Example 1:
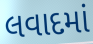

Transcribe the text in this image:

લવાદમાં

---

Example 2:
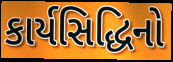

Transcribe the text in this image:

કાર્યસિદ્ધિનો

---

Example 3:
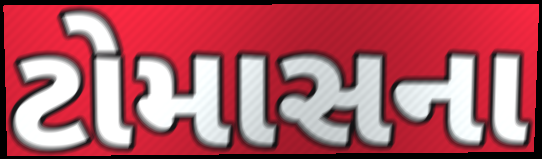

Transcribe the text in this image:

ટોમાસના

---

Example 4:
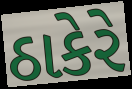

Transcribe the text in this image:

ઠાકેરે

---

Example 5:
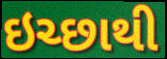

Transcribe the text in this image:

ઇચ્છાથી